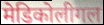
मेडिकोलीगल